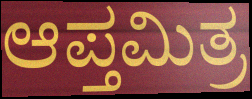
ಆಪ್ತಮಿತ್ರ